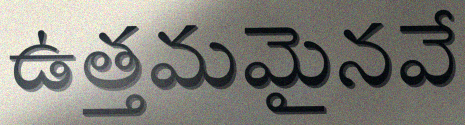
ఉత్తమమైనవే